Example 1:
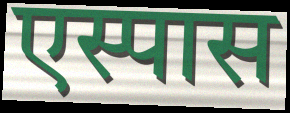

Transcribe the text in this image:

एस्पास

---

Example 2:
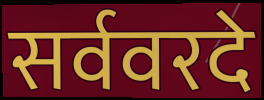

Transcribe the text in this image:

सर्ववरदे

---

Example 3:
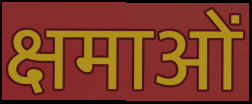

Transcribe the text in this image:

क्षमाओं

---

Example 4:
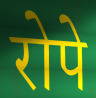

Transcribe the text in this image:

रोपे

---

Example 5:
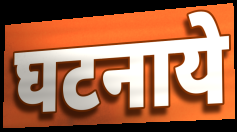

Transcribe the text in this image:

घटनाये